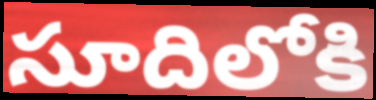
సూదిలోకి